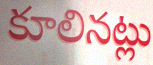
కూలినట్లు